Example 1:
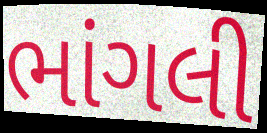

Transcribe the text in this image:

ભાંગલી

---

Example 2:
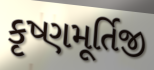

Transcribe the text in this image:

કૃષ્ણમૂર્તિજી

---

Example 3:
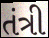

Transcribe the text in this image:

તંત્રી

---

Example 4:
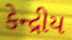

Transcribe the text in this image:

કેન્દ્રીય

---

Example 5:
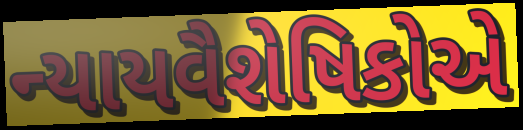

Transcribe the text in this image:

ન્યાયવૈશેષિકોએ